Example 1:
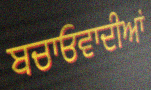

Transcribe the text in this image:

ਬਚਾਓਵਾਦੀਆਂ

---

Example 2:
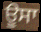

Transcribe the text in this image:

ਊਸਾ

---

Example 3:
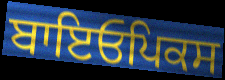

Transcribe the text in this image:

ਬਾਇਓਪਿਕਸ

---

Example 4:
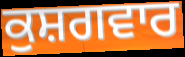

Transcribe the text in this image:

ਕੁਸ਼ਗਵਾਰ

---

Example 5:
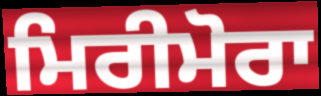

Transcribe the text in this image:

ਮਿਰੀਮੋਰਾ